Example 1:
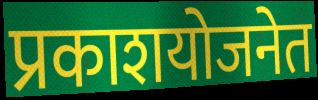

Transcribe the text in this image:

प्रकाशयोजनेत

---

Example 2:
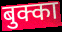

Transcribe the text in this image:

बुक्का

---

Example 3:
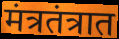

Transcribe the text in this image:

मंत्रतंत्रात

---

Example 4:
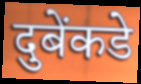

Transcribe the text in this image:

दुबेंकडे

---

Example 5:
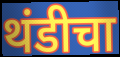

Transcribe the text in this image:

थंडीचा